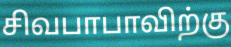
சிவபாபாவிற்கு